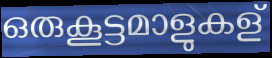
ഒരുകൂട്ടമാളുകള്